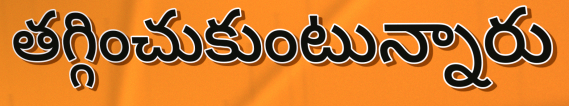
తగ్గించుకుంటున్నారు